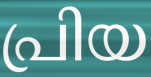
പ്രിയ